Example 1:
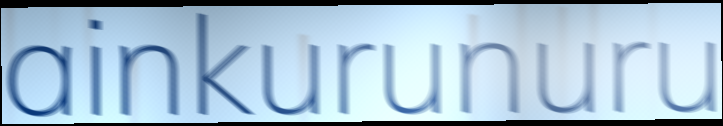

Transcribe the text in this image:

ainkurunuru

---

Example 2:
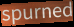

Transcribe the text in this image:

spurned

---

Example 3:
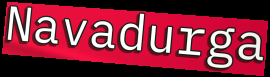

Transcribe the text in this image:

Navadurga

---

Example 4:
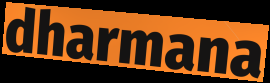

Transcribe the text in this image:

dharmana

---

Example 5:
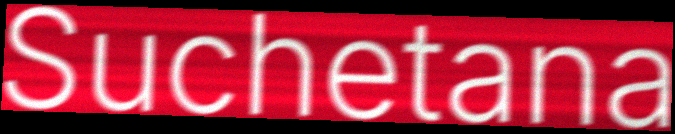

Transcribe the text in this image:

Suchetana